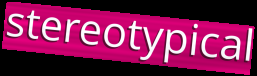
stereotypical